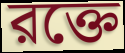
রক্তে